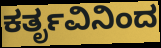
ಕರ್ತೃವಿನಿಂದ